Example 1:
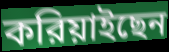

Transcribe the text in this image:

করিয়াইছেন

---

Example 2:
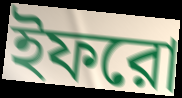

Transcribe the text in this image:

ইফরো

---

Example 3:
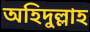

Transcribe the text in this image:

অহিদুল্লাহ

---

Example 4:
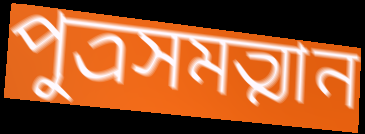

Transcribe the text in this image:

পুত্রসমত্মান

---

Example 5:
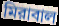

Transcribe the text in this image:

মিরাবাল